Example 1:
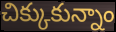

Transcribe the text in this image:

చిక్కుకున్నాం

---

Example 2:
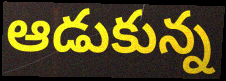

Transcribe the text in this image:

ఆడుకున్న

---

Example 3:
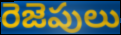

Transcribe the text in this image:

రెజెపులు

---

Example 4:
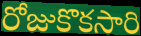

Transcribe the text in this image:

రోజుకొకసారి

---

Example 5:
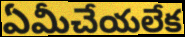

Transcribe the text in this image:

ఏమీచేయలేక